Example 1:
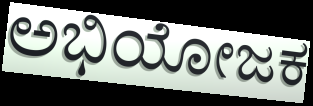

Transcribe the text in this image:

ಅಭಿಯೋಜಕ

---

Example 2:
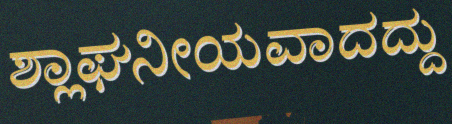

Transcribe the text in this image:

ಶ್ಲಾಘನೀಯವಾದದ್ದು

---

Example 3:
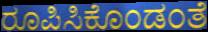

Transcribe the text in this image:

ರೂಪಿಸಿಕೊಂಡಂತೆ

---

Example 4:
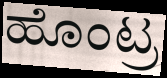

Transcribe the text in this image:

ಹೊಂಟ್ರ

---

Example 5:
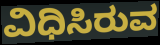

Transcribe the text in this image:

ವಿಧಿಸಿರುವ